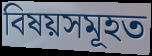
বিষয়সমূহত